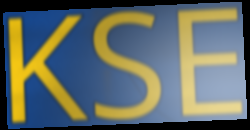
KSE